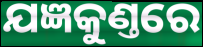
ଯଜ୍ଞକୁଣ୍ତରେ